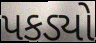
પકડ્યો